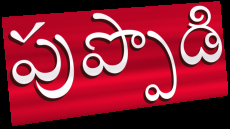
పుప్పొడి